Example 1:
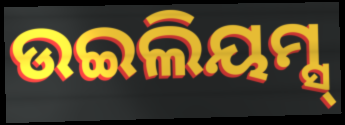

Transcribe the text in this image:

ଉଇଲିୟମ୍ସ୍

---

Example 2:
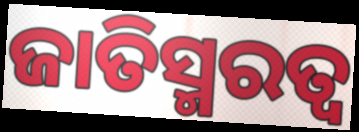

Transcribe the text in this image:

ଜାତିସ୍ମରତ୍ୱ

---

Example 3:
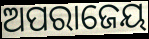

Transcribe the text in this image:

ଅପରାଜେୟ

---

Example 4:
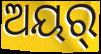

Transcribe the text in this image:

ଅୟର୍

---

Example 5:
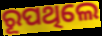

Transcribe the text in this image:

ରୂପଥିଲେ